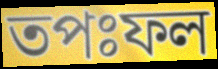
তপঃফল